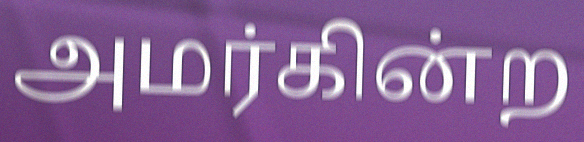
அமர்கின்ற